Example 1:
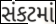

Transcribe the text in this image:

સંકટમાં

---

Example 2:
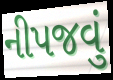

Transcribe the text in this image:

નીપજવું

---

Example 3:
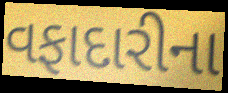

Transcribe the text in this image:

વફાદારીના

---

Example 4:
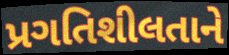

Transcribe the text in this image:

પ્રગતિશીલતાને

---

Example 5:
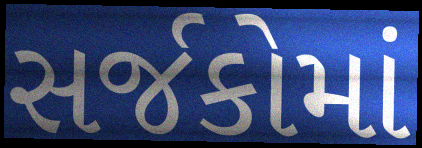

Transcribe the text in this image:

સર્જકોમાં